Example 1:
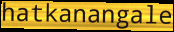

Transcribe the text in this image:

hatkanangale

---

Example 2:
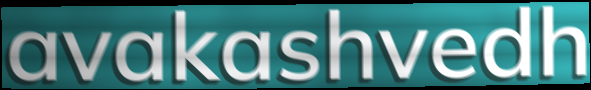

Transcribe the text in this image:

avakashvedh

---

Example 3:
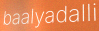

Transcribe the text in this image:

baalyadalli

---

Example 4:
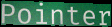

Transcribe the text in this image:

Pointer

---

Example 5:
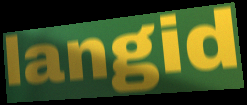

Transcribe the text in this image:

langid